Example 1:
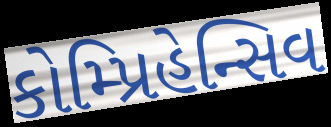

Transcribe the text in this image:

કોમ્પ્રિહેન્સિવ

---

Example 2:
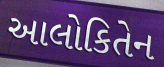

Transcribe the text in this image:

આલોકિતેન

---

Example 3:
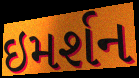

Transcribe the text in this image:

ઇમર્શન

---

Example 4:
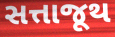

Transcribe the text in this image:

સત્તાજૂથ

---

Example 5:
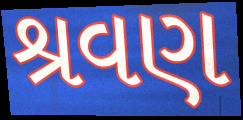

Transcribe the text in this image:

શ્રવણ